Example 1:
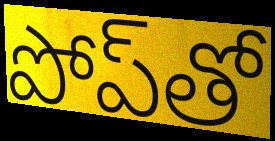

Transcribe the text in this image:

పోప్‌తో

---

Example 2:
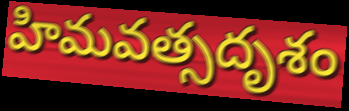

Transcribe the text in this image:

హిమవత్సదృశం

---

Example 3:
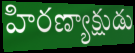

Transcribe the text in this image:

హిరణ్యాక్షుడు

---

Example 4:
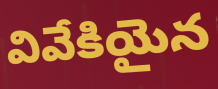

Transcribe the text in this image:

వివేకియైన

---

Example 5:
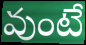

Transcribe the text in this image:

వుంటే